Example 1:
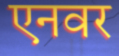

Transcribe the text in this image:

एनवर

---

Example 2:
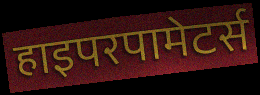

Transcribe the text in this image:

हाइपरपामेटर्स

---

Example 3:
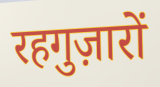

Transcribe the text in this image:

रहगुज़ारों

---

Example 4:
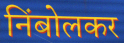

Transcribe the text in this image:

निंबोलकर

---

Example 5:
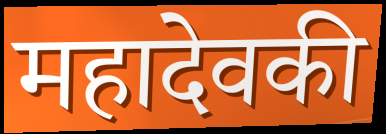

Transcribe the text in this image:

महादेवकी